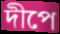
দীপে